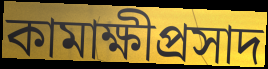
কামাক্ষীপ্রসাদ